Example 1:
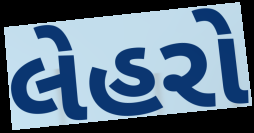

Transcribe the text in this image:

લેહરો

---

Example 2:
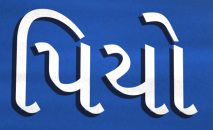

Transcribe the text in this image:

પિયો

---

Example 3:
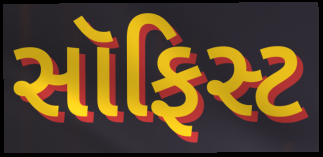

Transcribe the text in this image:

સૉફિસ્ટ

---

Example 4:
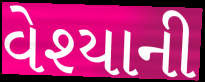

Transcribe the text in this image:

વેશ્યાની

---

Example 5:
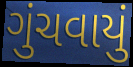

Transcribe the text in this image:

ગુંચવાયું